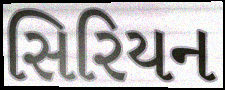
સિરિયન